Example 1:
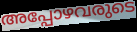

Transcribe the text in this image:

അപ്പോഴവരുടെ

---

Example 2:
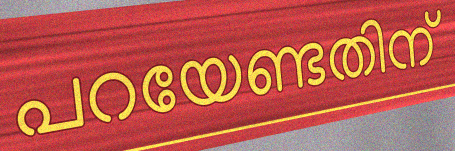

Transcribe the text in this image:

പറയേണ്ടതിന്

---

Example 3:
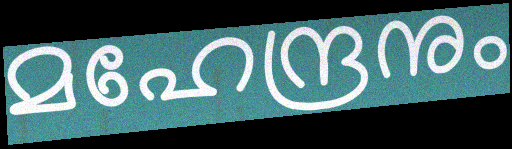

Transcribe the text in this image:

മഹേന്ദ്രനും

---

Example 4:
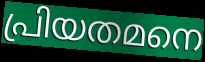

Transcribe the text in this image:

പ്രിയതമനെ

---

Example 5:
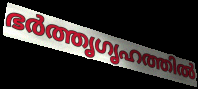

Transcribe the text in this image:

ഭർത്തൃഗൃഹത്തിൽ